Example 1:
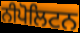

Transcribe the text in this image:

ਨੀਪੋਲਿਟਨ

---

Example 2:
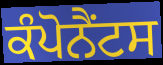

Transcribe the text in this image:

ਕੰਪੋਨੈਂਟਸ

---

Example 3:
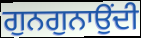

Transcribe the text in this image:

ਗੁਨਗੁਨਾਉਂਦੀ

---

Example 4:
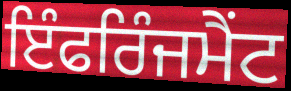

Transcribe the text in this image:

ਇੰਫਰਿੰਜਮੈਂਟ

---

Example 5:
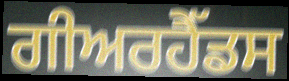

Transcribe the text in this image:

ਗੀਅਰਹੈੱਡਸ